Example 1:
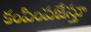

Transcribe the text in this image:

కంపింపజేస్తూ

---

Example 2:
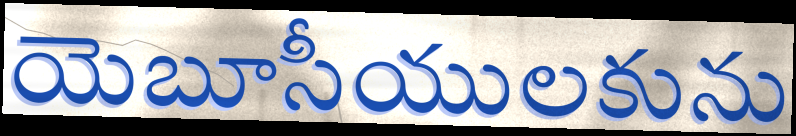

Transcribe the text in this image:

యెబూసీయులకును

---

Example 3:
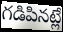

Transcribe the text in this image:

గడిపినట్లే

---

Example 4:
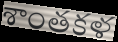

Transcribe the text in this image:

శాంతకళ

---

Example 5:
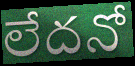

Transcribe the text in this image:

లేదనో